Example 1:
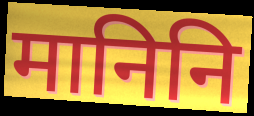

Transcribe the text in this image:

मानिनि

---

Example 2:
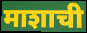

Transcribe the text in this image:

माशाची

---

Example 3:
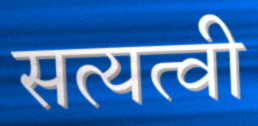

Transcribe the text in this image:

सत्यत्वी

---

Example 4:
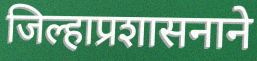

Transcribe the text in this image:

जिल्हाप्रशासनाने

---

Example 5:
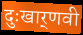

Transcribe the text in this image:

दुःखार्णवी